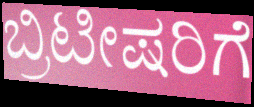
ಬ್ರಿಟೀಷರಿಗೆ